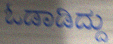
ಓಡಾಡಿದ್ದು